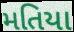
મતિયા